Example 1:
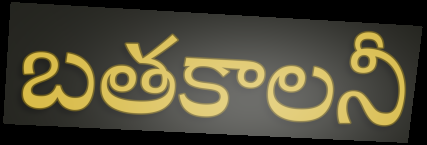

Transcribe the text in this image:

బతకాలనీ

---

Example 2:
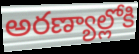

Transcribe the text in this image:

అరణ్యాల్లోకి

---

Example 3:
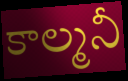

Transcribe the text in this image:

కాల్మనీ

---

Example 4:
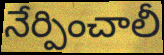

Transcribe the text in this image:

నేర్పించాలీ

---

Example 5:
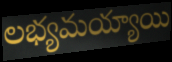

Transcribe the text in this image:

లభ్యమయ్యాయి